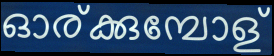
ഓര്ക്കുമ്പോള്